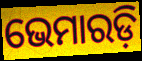
ଭେମାରଡ଼ି